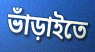
ভাঁড়াইতে